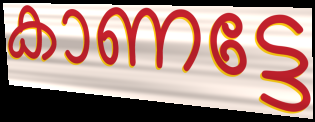
കാണട്ടേ